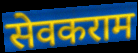
सेवकराम